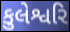
કુલેશ્વરિ